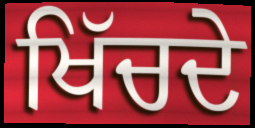
ਖਿੱਚਦੇ